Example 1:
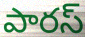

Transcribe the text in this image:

పారస్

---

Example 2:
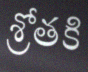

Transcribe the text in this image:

శ్రోతకి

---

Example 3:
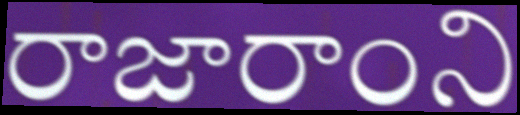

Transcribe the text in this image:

రాజారాంని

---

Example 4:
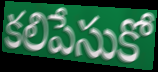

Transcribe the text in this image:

కలిపేసుకో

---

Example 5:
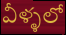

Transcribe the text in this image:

వీళ్ళలో